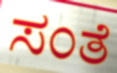
ಸಂತೆ